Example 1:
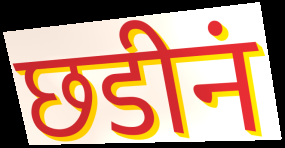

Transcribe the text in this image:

छडीनं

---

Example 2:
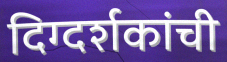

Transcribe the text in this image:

दिग्दर्शकांची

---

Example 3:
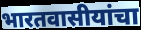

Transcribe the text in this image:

भारतवासीयांचा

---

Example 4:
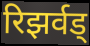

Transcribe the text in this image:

रिझर्वड्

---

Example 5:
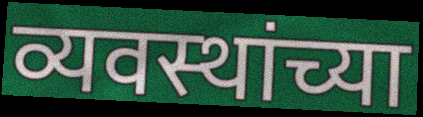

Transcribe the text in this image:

व्यवस्थांच्या